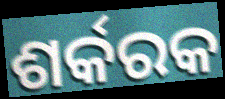
ଶର୍କରକ